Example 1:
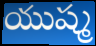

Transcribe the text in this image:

యుష్మ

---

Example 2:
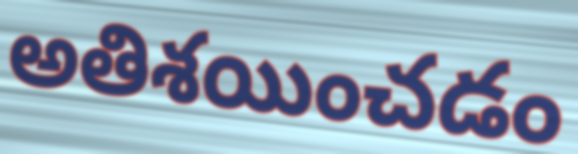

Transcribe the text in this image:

అతిశయించడం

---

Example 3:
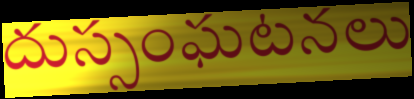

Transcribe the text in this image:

దుస్సంఘటనలు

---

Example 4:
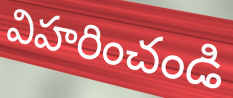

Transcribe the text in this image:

విహరించండి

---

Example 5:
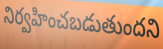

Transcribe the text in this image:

నిర్వహించబడుతుందని